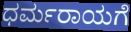
ಧರ್ಮರಾಯಗೆ